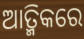
ଆତ୍ମିକରେ